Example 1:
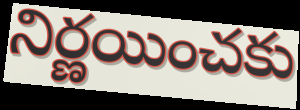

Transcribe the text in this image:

నిర్ణయించకు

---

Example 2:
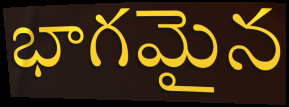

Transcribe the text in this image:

భాగమైన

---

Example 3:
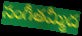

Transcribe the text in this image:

సంగీతమ్మీద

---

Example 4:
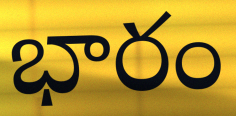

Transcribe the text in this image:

భారం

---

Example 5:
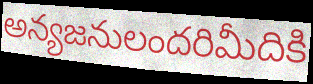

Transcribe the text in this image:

అన్యజనులందరిమీదికి